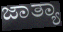
ಜಾತ್ಯಾ